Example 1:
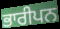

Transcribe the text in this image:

ਭਾਰੀਪਨ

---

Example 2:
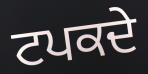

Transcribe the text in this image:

ਟਪਕਦੇ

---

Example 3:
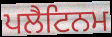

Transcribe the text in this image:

ਪਲੈਟਿਨਮ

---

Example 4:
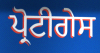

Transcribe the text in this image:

ਪ੍ਰੋਟੀਗੇਸ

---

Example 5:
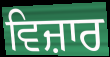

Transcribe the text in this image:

ਵਿਜ਼ਾਰ